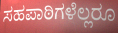
ಸಹಪಾಠಿಗಳೆಲ್ಲರೂ